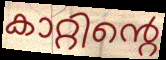
കാറ്റിന്റെ